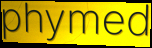
phymed